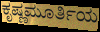
ಕೃಷ್ಣಮೂರ್ತಿಯ